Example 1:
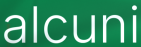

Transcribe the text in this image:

alcuni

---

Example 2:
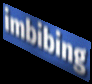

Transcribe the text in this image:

imbibing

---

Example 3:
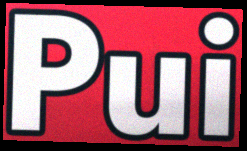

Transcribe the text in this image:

Pui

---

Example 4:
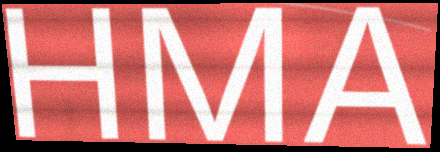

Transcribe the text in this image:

HMA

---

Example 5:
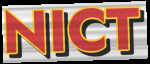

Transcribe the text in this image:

NICT